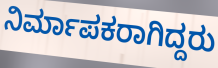
ನಿರ್ಮಾಪಕರಾಗಿದ್ದರು